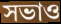
সভাও